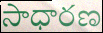
సాధారణ